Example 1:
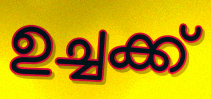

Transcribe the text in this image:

ഉച്ചക്ക്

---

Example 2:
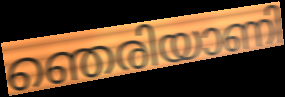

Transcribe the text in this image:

ഞെരിയാണി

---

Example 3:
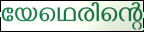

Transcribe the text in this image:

യേഥെരിന്റെ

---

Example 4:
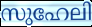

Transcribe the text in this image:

സുഹേലി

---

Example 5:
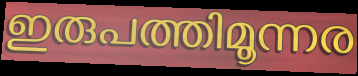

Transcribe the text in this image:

ഇരുപത്തിമൂന്നര